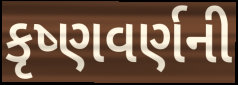
કૃષ્ણવર્ણની